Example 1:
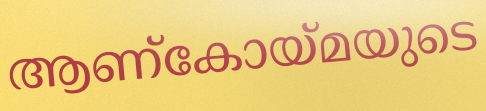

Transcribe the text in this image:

ആണ്കോയ്മയുടെ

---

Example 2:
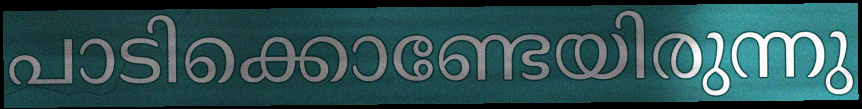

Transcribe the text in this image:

പാടിക്കൊണ്ടേയിരുന്നു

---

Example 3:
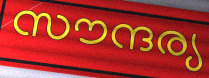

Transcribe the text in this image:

സൗന്ദര്യ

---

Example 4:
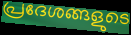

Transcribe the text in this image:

പ്രദേശങ്ങളുടെ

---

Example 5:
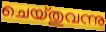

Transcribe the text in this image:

ചെയ്തുവന്നു